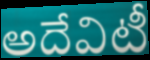
అదేవిటీ